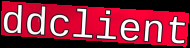
ddclient